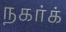
நகர்க்